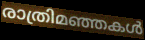
രാത്രിമഞ്ഞകൾ